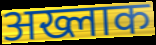
अख्लाक